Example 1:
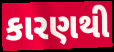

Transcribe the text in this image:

કારણથી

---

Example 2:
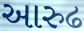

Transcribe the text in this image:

આરુઢ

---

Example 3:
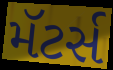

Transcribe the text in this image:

મૅટર્સ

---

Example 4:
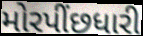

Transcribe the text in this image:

મોરપીંછધારી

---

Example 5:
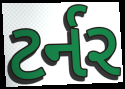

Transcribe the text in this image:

ટર્નર